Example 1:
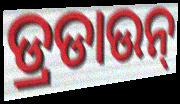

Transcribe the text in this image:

ଡ୍ରଡାଉନ୍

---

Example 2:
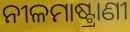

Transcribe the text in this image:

ନୀଳମାଷ୍ଟ୍ରାଣୀ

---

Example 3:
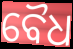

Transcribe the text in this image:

ବୈଧ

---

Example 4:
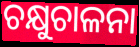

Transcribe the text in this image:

ଚକ୍ଷୁଚାଳନା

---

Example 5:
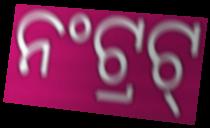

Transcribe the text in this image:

ନଂଟ୍ରଟ୍